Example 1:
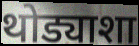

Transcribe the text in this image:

थोड्याशा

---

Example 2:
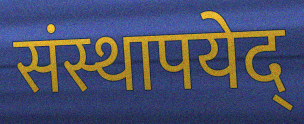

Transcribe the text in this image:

संस्थापयेद्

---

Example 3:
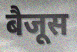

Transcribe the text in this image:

बैजूस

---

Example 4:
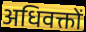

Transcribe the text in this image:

अधिवक्तों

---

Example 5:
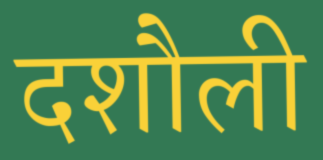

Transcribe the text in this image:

दशौली